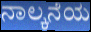
ನಾಲ್ಕನೆಯ